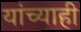
यांच्याही